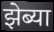
झेब्या